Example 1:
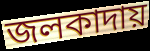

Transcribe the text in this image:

জলকাদায়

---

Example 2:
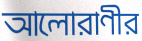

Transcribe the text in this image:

আলোরাণীর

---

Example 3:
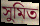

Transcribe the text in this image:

সুমিত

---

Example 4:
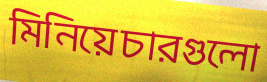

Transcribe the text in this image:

মিনিয়েচারগুলো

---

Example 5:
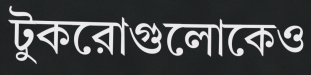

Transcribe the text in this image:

টুকরোগুলোকেও